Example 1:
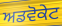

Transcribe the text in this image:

ਅਡਵੋਕੇਟ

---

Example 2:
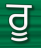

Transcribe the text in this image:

ਰੂ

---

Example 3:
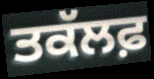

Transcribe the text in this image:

ਤਕੱਲਫ਼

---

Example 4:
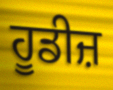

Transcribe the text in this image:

ਹੂਡੀਜ਼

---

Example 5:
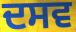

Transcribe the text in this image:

ਦਸਵ